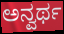
ಅನ್ವರ್ಥ